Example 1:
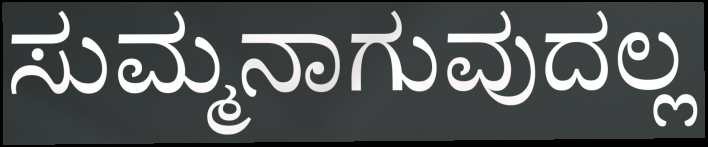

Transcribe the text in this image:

ಸುಮ್ಮನಾಗುವುದಲ್ಲ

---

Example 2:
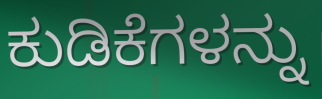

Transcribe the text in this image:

ಕುಡಿಕೆಗಳನ್ನು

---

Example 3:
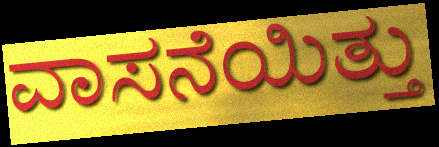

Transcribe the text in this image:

ವಾಸನೆಯಿತ್ತು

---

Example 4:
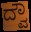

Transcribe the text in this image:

ದ್ವೌ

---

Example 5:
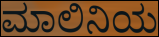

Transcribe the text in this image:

ಮಾಲಿನಿಯ